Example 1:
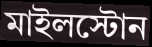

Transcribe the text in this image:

মাইলস্টোন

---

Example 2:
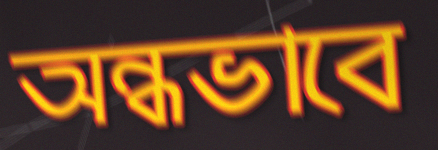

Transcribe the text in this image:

অন্ধভাবে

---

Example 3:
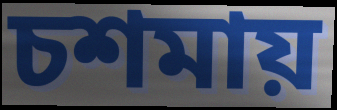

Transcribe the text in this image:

চশমায়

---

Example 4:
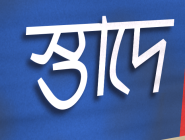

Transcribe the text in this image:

স্তাদে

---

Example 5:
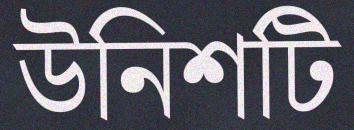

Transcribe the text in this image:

উনিশটি